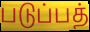
படுப்பத்